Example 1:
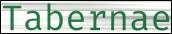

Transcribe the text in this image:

Tabernae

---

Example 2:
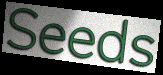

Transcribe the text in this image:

Seeds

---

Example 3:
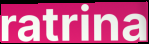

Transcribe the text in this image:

ratrina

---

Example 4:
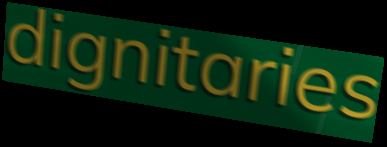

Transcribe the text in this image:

dignitaries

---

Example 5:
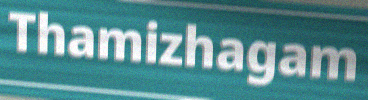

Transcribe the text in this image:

Thamizhagam